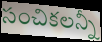
సంచికలన్నీ